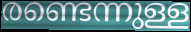
രണ്ടെന്നുള്ള